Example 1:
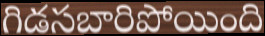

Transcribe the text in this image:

గిడసబారిపోయింది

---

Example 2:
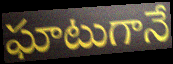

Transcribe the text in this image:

ఘాటుగానే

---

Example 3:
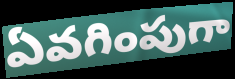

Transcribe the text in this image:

ఏవగింపుగా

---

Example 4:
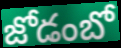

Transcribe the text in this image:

జోడంబో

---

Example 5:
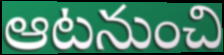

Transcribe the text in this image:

ఆటనుంచి